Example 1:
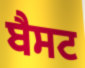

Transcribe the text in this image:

ਬੈਸਟ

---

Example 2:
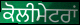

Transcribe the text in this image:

ਕੋਲੀਮੇਟਰਾਂ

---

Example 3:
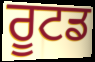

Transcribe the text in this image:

ਰੂਟਡ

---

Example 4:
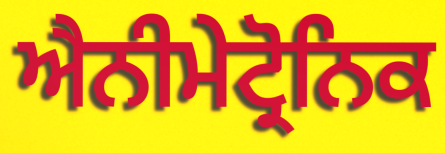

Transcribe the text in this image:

ਐਨੀਮੇਟ੍ਰੋਨਿਕ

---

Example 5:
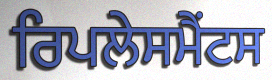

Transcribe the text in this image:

ਰਿਪਲੇਸਮੈਂਟਸ